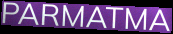
PARMATMA